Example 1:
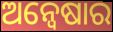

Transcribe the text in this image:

ଅନ୍ବେଷାର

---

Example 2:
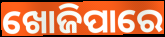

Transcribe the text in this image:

ଖୋଜିପାରେ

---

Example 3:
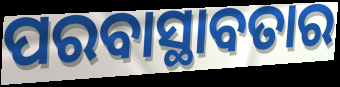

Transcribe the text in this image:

ପରବାସ୍ଥାବତାର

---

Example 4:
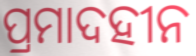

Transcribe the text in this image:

ପ୍ରମାଦହୀନ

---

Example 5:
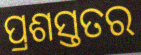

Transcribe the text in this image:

ପ୍ରଶସ୍ତତର